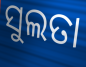
ସୁଲତା